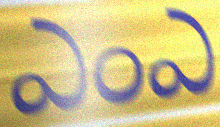
ఎంఎ